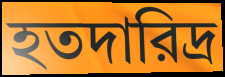
হতদারিদ্র